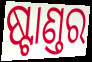
ଷ୍ଟାଣ୍ଡର